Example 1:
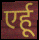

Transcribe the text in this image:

एर्हू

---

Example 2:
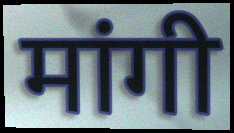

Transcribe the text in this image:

मांगी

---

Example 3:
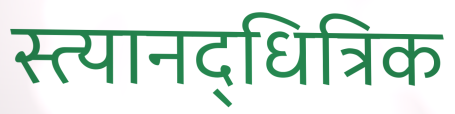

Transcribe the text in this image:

स्त्यानद्धित्रिक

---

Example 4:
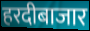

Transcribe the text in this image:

हरदीबाजार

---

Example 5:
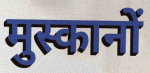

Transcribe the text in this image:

मुस्कानों